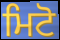
ਮਿਟੋ